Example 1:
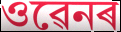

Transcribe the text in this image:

ওৱেনৰ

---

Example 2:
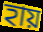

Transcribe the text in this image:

হায়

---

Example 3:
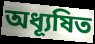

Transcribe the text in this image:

অধ্যূষিত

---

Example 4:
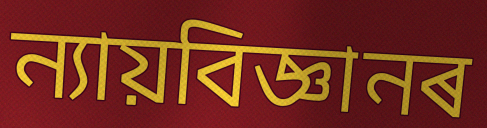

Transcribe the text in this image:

ন্যায়বিজ্ঞানৰ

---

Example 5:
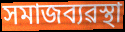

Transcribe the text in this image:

সমাজব্যৱস্থা